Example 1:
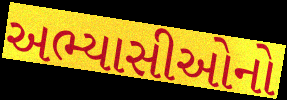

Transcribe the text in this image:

અભ્યાસીઓનો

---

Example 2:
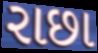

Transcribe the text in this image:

રાછા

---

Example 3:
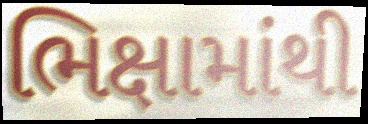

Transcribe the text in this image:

ભિક્ષામાંથી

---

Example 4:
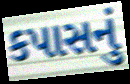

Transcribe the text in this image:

કપાસનું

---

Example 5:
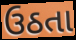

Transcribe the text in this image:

ઉઠતા